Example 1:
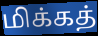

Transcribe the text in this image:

மிக்கத்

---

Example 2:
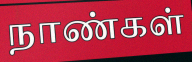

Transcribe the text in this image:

நாண்கள்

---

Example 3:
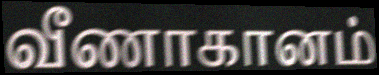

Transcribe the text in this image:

வீணாகானம்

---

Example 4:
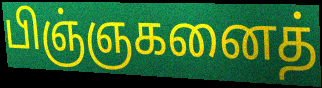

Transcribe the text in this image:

பிஞ்ஞகனைத்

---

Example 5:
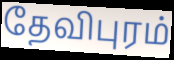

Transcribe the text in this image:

தேவிபுரம்